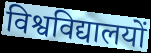
विश्वविद्यालयों